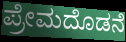
ಪ್ರೇಮದೊಡನೆ